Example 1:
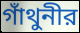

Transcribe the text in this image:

গাঁথুনীর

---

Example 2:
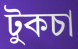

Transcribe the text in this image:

টুকচা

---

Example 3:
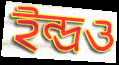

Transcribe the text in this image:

ইন্দ্রও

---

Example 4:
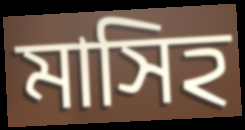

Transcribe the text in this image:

মাসিহ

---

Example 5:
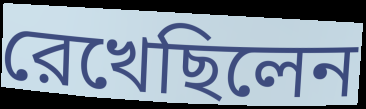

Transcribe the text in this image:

রেখেছিলেন